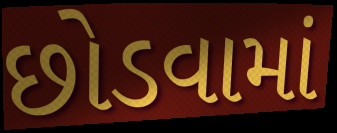
છોડવામાં